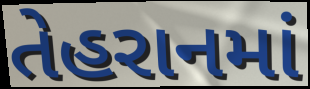
તેહરાનમાં